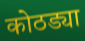
कोठड्या